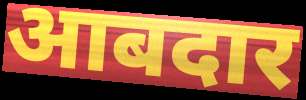
आबदार